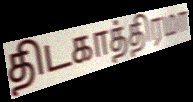
திடகாத்திரமா